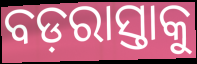
ବଡ଼ରାସ୍ତାକୁ